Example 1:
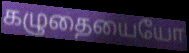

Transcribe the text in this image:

கழுதையையோ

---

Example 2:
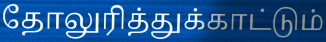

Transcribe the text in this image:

தோலுரித்துக்காட்டும்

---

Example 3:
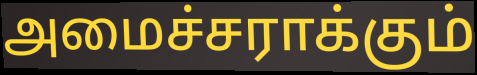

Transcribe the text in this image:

அமைச்சராக்கும்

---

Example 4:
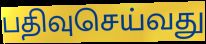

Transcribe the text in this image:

பதிவுசெய்வது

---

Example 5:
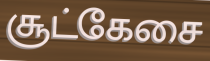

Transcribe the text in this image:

சூட்கேசை